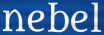
nebel